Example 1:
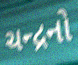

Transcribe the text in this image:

ચન્દ્રનો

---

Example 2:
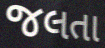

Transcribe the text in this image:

જલતા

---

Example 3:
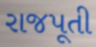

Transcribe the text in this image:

રાજપૂતી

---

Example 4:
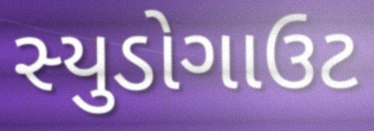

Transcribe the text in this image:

સ્યુડોગાઉટ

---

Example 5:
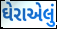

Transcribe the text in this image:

ઘેરાએલું